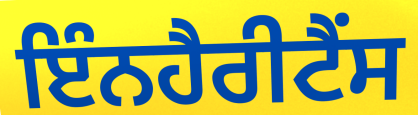
ਇੰਨਹੈਰੀਟੈੰਸ